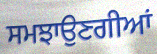
ਸਮਝਾਉਣਗੀਆਂ